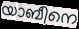
യാബീനെ